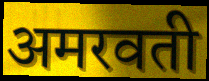
अमरवती